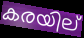
കരയില്